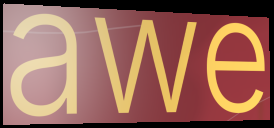
awe